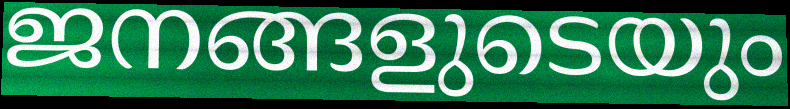
ജനങ്ങളുടെയും